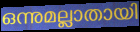
ഒന്നുമല്ലാതായി